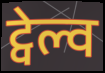
ट्वेल्व